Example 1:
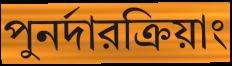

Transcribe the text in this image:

পুনর্দারক্রিয়াং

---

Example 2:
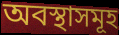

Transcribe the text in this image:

অবস্থাসমূহ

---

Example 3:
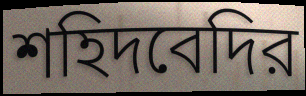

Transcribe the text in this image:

শহিদবেদির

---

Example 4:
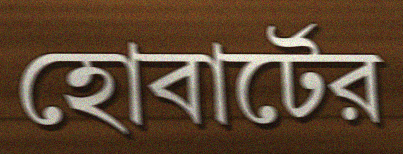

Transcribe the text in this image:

হোবার্টের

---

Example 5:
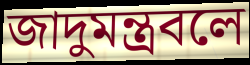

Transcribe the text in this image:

জাদুমন্ত্রবলে